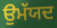
ਉਮੱਯਦ